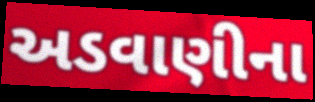
અડવાણીના